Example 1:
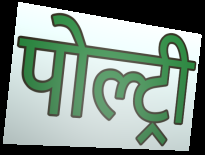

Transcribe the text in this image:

पोल्ट्री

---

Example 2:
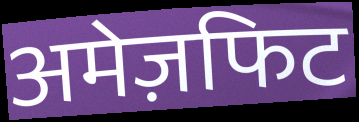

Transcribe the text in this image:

अमेज़फिट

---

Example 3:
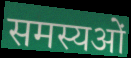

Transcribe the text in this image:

समस्यओं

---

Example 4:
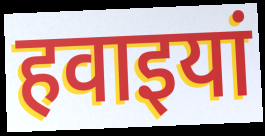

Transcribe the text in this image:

हवाइयां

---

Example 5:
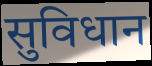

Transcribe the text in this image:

सुविधान